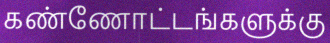
கண்ணோட்டங்களுக்கு